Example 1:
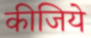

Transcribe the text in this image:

कीजिये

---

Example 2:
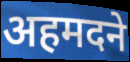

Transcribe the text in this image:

अहमदने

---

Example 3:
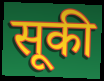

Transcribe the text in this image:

सूकी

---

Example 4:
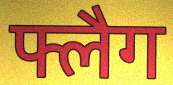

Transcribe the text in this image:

फ्लैग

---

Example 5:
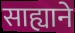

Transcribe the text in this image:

साह्याने